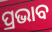
ପ୍ରଭାବ